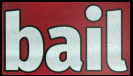
bail